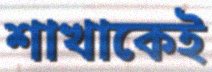
শাখাকেই